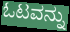
ಓಟವನ್ನು